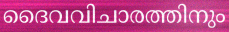
ദൈവവിചാരത്തിനും